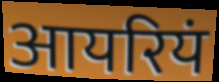
आयरियं